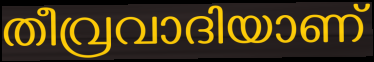
തീവ്രവാദിയാണ്